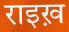
राइख़